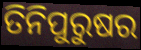
ତିନିପୁରୁଷର